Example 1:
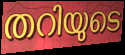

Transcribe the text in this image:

തറിയുടെ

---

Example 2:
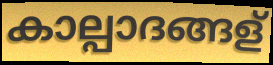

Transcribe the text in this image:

കാല്പാദങ്ങള്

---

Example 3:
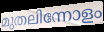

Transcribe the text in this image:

മുതലിന്നോളം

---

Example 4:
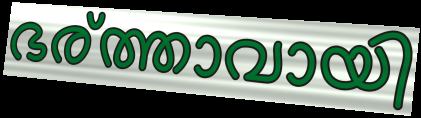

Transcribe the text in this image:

ഭര്ത്താവായി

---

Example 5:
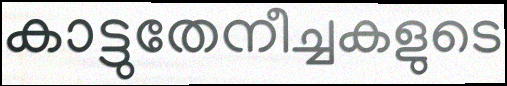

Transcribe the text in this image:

കാട്ടുതേനീച്ചകളുടെ